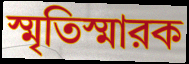
স্মৃতিস্মারক